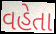
વહેતા